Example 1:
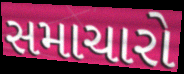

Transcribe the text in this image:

સમાચારો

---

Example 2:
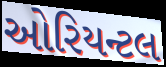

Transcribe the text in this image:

ઓરિયન્ટલ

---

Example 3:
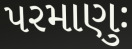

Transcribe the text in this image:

પરમાણુઃ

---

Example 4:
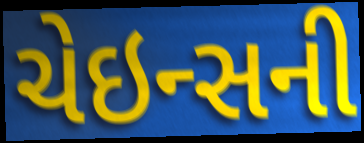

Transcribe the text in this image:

ચેઇન્સની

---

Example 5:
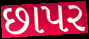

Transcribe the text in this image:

છાપર